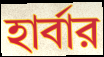
হার্বার